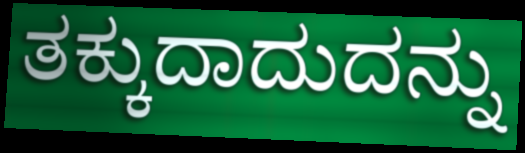
ತಕ್ಕುದಾದುದನ್ನು